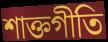
শাক্তগীতি